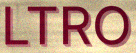
LTRO